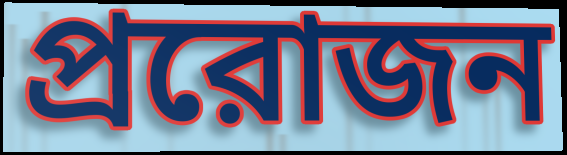
প্ররোজন